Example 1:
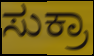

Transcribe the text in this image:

ಸುಕ್ರಾ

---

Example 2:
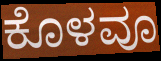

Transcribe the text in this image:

ಕೊಳವೂ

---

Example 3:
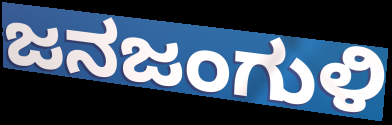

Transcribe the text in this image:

ಜನಜಂಗುಳಿ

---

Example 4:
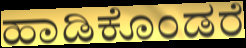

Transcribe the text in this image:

ಹಾಡಿಕೊಂಡರೆ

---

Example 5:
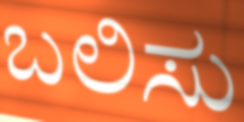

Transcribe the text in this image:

ಬಲಿಸು